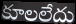
కూలలేదు